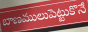
బాణములుపెట్టుకొనే